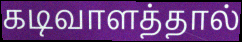
கடிவாளத்தால்